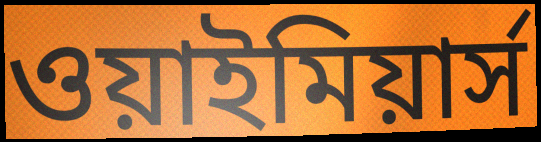
ওয়াইমিয়ার্স